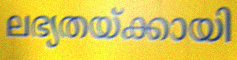
ലഭ്യതയ്ക്കായി